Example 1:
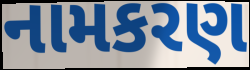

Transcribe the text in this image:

નામકરણ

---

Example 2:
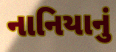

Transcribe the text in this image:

નાનિયાનું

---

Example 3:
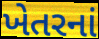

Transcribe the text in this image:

ખેતરનાં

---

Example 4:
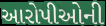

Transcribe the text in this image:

આરોપીઓની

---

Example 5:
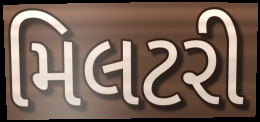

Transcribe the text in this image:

મિલટરી